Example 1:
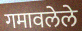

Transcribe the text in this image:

गमावलेले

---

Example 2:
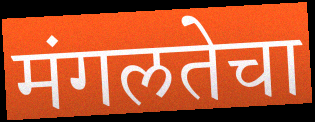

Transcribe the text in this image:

मंगलतेचा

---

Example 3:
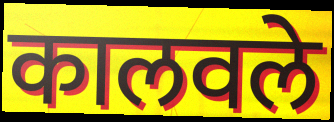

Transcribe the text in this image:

कालवले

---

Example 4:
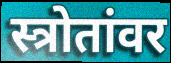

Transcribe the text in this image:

स्त्रोतांवर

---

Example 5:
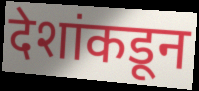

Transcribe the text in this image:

देशांकडून